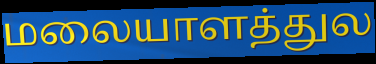
மலையாளத்துல